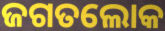
ଜଗତଲୋକ